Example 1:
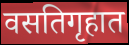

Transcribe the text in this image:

वसतिगृहात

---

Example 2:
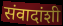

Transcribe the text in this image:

संवादांशी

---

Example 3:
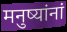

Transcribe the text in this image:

मनुष्यांनां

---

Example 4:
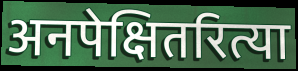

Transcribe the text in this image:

अनपेक्षितरित्या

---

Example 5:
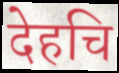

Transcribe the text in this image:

देहचि